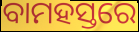
ବାମହସ୍ତରେ